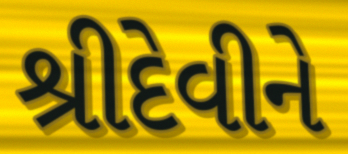
શ્રીદેવીને